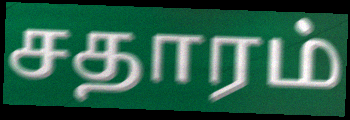
சதாரம்